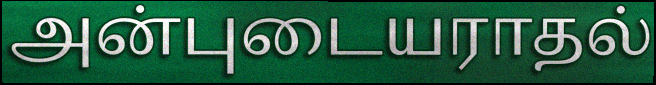
அன்புடையராதல்